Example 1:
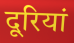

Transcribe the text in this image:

दूरियां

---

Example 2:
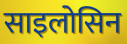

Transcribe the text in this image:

साइलोसिन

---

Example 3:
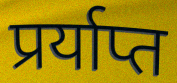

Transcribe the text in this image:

प्रर्याप्त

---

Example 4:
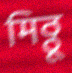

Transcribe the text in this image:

मिठ्ठू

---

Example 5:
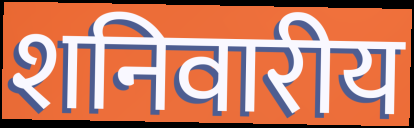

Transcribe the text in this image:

शनिवारीय